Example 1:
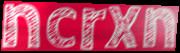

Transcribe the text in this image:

ncrxn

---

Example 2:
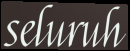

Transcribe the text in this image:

seluruh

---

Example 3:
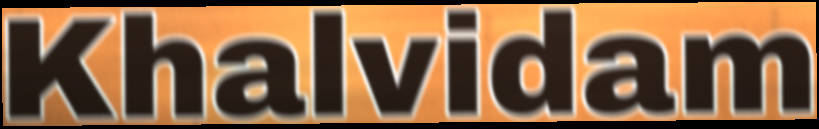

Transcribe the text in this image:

Khalvidam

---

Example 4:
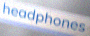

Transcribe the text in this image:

headphones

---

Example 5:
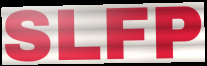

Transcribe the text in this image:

SLFP